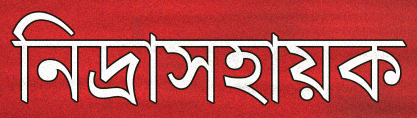
নিদ্রাসহায়ক